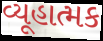
વ્યૂહાત્મક